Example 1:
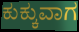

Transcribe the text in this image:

ಕುಕ್ಕುವಾಗ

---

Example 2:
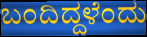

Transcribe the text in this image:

ಬಂದಿದ್ದಳೆಂದು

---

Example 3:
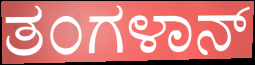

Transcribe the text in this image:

ತಂಗಳಾನ್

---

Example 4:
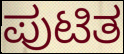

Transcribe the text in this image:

ಪುಟಿತ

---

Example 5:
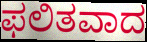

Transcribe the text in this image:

ಫಲಿತವಾದ